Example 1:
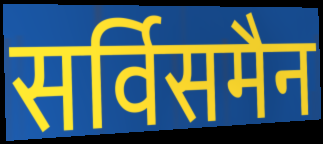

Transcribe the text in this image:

सर्विसमैन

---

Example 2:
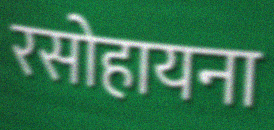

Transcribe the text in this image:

रसोहायना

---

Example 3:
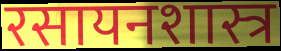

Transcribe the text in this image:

रसायनशास्त्र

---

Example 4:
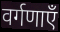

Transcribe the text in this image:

वर्गणाएँ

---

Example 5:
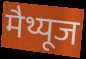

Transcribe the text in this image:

मैथ्‍यूज